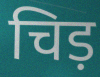
चिड़